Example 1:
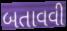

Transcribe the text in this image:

બતાવવી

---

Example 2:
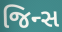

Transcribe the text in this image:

જિન્સ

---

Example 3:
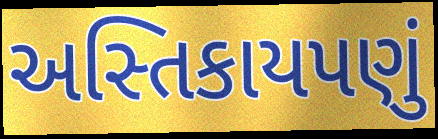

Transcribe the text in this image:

અસ્તિકાયપણું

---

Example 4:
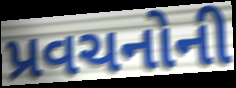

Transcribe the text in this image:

પ્રવચનોની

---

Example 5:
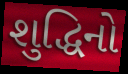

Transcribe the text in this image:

શુદ્ધિનો